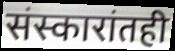
संस्कारांतही